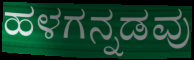
ಹಳಗನ್ನಡವು